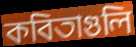
কবিতাগুলি